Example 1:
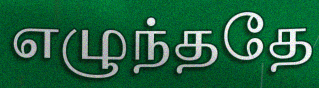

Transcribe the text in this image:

எழுந்ததே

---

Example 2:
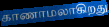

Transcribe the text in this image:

காணாமலாகிறது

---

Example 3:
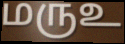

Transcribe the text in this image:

மருஉ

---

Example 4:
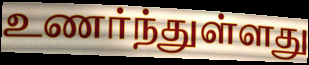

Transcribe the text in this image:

உணர்ந்துள்ளது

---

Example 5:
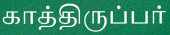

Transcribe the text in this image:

காத்திருப்பர்